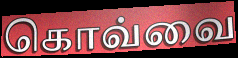
கொவ்வை